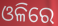
ଓଳିରେ